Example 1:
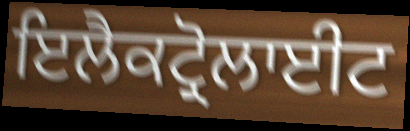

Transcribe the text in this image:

ਇਲੈਕਟ੍ਰੋਲਾਈਟ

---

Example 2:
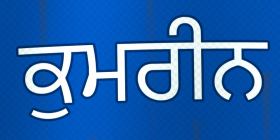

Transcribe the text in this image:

ਕੁਮਰੀਨ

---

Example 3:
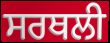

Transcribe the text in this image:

ਸਰਥਲੀ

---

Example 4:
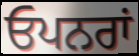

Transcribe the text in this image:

ਓਪਨਰਾਂ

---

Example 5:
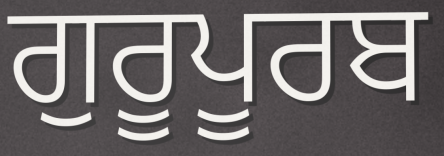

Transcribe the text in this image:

ਗੁਰੂਪੂਰਬ